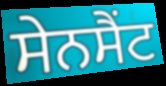
ਸੇਨਸੈਂਟ